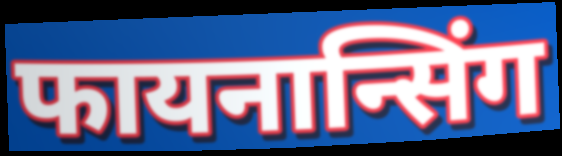
फायनान्सिंग